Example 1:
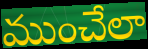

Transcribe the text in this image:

ముంచేలా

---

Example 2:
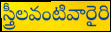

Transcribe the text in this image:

స్త్రీలవంటివారైరి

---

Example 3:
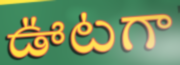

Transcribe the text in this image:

ఊటగా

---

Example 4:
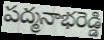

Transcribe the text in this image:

పద్మనాభరెడ్డి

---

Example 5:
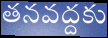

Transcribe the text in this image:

తనవద్దకు